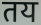
तय